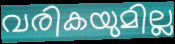
വരികയുമില്ല